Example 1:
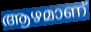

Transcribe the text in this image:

ആഴമാണ്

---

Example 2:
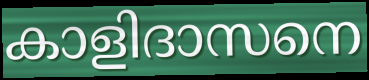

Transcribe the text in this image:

കാളിദാസനെ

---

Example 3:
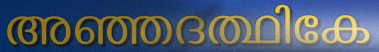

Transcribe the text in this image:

അഞ്ഞദത്ഥികേ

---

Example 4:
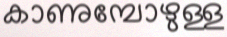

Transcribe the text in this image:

കാണുമ്പോഴുള്ള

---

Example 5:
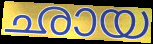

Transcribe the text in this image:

ഛായ